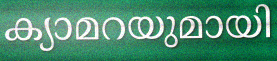
ക്യാമറയുമായി